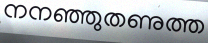
നനഞ്ഞുതണുത്ത